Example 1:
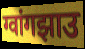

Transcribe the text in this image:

ग्वांगझाउ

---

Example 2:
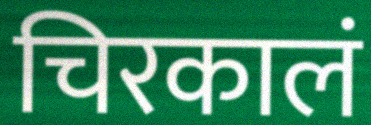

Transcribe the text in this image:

चिरकालं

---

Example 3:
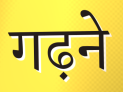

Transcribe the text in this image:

गढ़ने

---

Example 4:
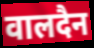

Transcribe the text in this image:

वालदैन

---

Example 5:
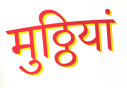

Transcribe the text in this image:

मुठ्ठियां